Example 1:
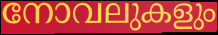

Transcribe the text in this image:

നോവലുകളും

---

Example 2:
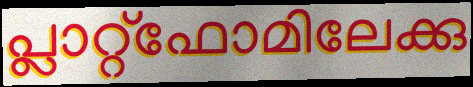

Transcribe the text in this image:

പ്ലാറ്റ്ഫോമിലേക്കു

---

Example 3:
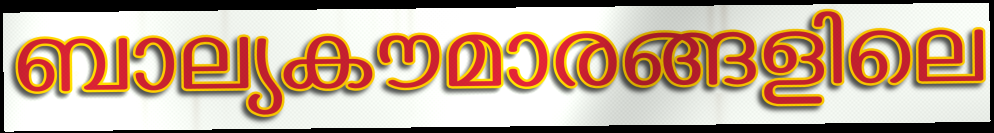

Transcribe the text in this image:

ബാല്യകൗമാരങ്ങളിലെ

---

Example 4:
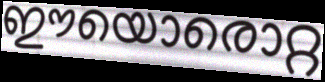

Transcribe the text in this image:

ഈയൊരൊറ്റ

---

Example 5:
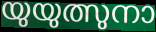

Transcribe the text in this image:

യുയുത്സുനാ